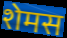
शेमस